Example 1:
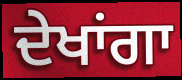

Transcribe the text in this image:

ਦੇਖਾਂਗਾ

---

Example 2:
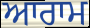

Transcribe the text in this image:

ਆਰਾਮ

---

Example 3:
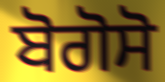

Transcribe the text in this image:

ਬੋਗੋਸੋ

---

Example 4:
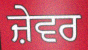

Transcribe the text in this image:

ਜ਼ੇਵਰ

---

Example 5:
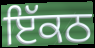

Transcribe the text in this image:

ਇੱਕਠ